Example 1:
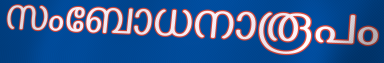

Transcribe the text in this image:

സംബോധനാരൂപം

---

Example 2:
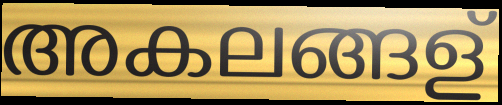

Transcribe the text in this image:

അകലങ്ങള്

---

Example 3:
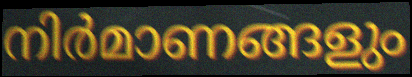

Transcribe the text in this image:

നിർമാണങ്ങളും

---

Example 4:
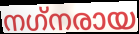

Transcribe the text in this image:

നഗ്‌നരായ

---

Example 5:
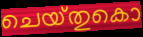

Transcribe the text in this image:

ചെയ്‌തുകൊ